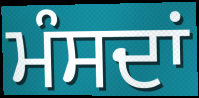
ਮੰਸਦਾਂ